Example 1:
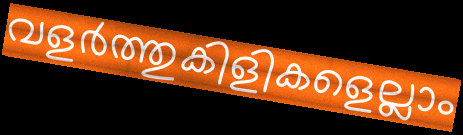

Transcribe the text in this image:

വളർത്തുകിളികളെല്ലാം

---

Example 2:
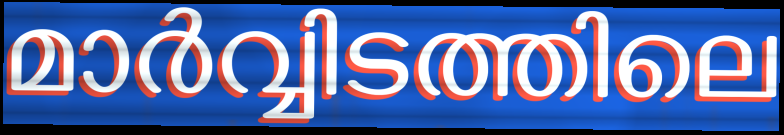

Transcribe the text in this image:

മാർവ്വിടത്തിലെ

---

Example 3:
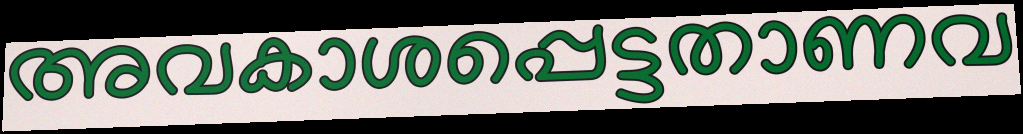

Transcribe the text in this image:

അവകാശപ്പെട്ടതാണവ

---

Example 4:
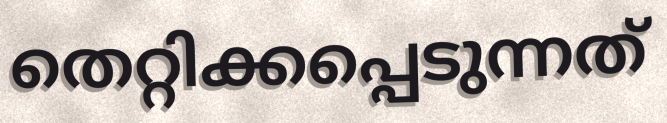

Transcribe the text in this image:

തെറ്റിക്കപ്പെടുന്നത്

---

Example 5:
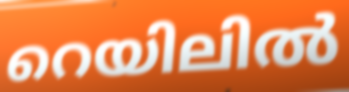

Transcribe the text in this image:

റെയിലിൽ